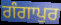
ਗੰਗਾਪੁਰ